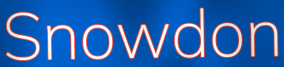
Snowdon